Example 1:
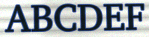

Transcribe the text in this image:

ABCDEF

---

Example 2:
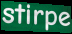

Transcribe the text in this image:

stirpe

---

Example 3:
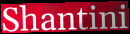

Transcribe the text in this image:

Shantini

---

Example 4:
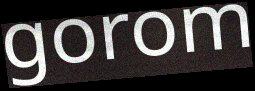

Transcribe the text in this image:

gorom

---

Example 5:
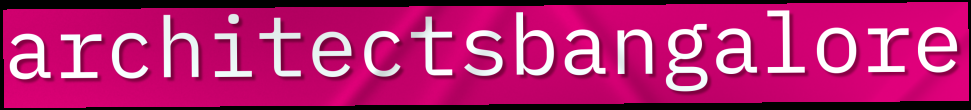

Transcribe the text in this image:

architectsbangalore